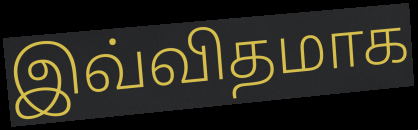
இவ்விதமாக